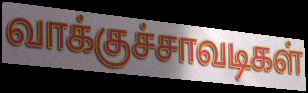
வாக்குச்சாவடிகள்